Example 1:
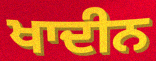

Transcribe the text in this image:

ਖਾਦੀਨ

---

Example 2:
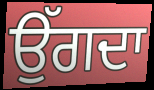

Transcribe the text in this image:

ਉੱਗਦਾ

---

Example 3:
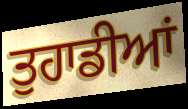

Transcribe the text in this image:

ਤੁਹਾਡੀਆਂ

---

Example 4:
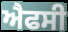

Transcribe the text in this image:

ਐਫਸੀ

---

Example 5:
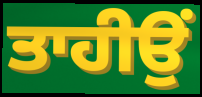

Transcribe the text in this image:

ਤਾਹੀਉਂ